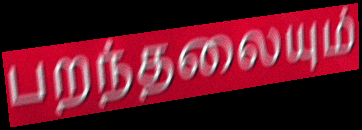
பறந்தலையும்